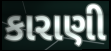
કારાણી